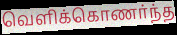
வெளிக்கொணர்ந்த